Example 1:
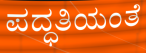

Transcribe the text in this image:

ಪದ್ಧತಿಯಂತೆ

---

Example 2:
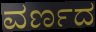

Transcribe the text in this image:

ವರ್ಣದ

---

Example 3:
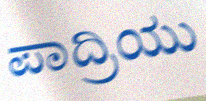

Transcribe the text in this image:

ಪಾದ್ರಿಯು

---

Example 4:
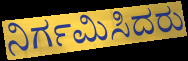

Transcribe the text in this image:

ನಿರ್ಗಮಿಸಿದರು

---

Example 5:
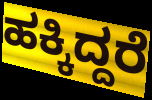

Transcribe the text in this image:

ಹಕ್ಕಿದ್ದರೆ